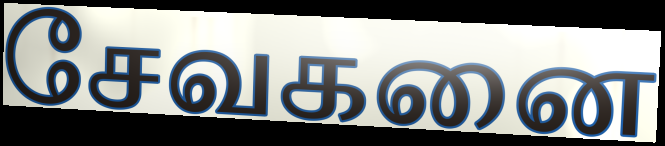
சேவகனை